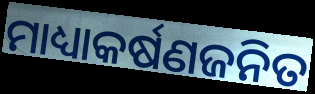
ମାଧ୍ୟାକର୍ଷଣଜନିତ